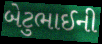
બેટુભાઈની